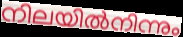
നിലയിൽനിന്നും